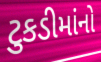
ટુકડીમાંનો